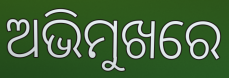
ଅଭିମୁଖରେ